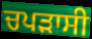
ਚਪੜਾਸੀ